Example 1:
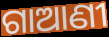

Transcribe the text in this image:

ଗାଆଣୀ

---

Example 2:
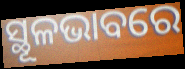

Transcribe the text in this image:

ସ୍ଥୂଳଭାବରେ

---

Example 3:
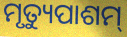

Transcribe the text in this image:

ମୃତ୍ୟୁପାଶମ୍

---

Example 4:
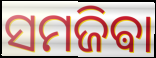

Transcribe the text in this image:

ସମଜିଵା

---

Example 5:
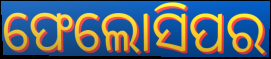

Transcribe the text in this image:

ଫେଲୋସିପର